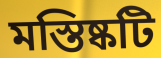
মস্তিষ্কটি